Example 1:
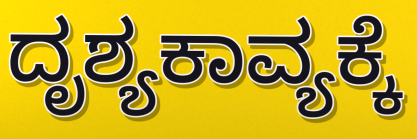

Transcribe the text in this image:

ದೃಶ್ಯಕಾವ್ಯಕ್ಕೆ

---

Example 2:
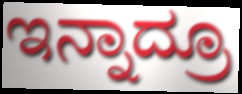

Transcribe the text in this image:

ಇನ್ನಾದ್ರೂ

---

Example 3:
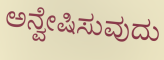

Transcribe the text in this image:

ಅನ್ವೇಷಿಸುವುದು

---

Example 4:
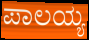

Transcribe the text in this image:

ಪಾಲಯ್ಯ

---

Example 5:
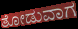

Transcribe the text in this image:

ತೋಡುವಾಗ